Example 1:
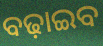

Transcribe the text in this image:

ବଢ଼ାଇବ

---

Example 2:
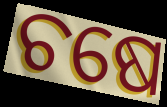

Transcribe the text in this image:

ଚଷେ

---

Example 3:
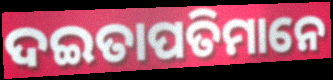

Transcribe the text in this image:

ଦଇତାପତିମାନେ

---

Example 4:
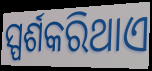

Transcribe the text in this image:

ସ୍ପର୍ଶକରିଥାଏ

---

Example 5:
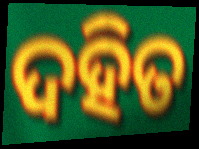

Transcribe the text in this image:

ଦହିତ